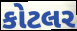
કોટલર